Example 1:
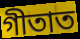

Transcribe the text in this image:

গীতাত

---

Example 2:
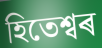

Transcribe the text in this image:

হিতেশ্বৰ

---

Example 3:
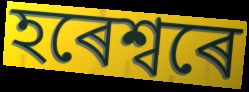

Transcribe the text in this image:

হৰেশ্বৰে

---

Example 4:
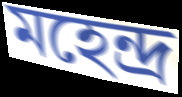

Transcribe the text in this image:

মহেন্দ্ৰ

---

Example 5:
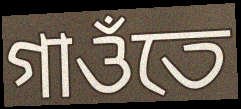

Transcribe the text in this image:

গাওঁতে